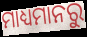
ମାଧ୍ୟମାନରୁ